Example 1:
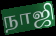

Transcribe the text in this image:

நாஜி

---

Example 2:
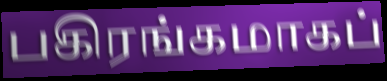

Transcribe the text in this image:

பகிரங்கமாகப்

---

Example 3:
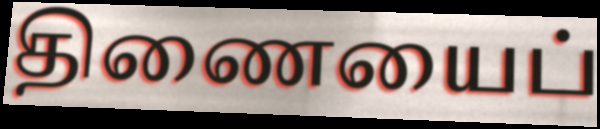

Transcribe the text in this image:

திணையைப்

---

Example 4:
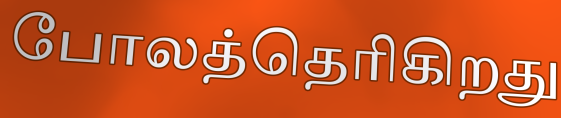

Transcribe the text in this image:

போலத்தெரிகிறது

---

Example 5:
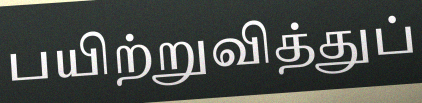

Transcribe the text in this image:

பயிற்றுவித்துப்